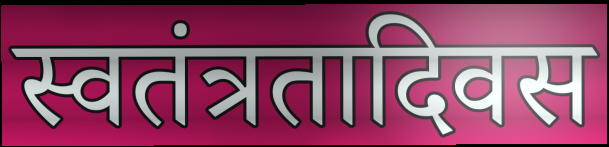
स्वतंत्रतादिवस